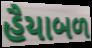
હૈયાબળ